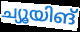
ച്യൂയിങ്